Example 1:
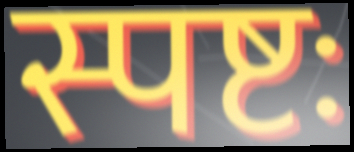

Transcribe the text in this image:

स्पष्टः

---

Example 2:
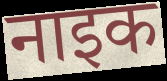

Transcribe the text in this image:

नाइक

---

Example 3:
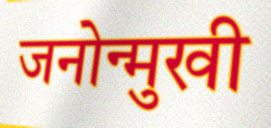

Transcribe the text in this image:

जनोन्मुखी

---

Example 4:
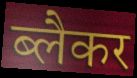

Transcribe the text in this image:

ब्लैकर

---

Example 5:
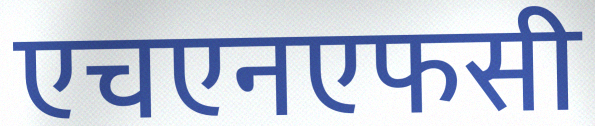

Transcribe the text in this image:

एचएनएफसी